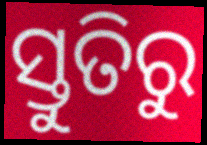
ସ୍ତୁତିରୁ